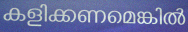
കളിക്കണമെങ്കിൽ